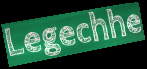
Legechhe